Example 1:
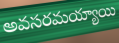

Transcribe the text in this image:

అవసరమయ్యాయి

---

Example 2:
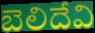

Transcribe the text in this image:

బెలిదేవి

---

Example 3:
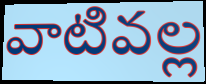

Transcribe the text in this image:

వాటివల్ల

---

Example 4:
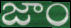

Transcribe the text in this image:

జాం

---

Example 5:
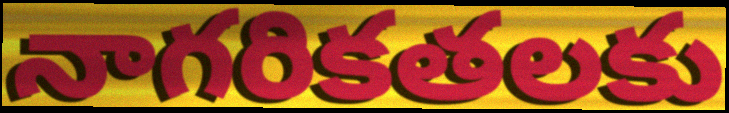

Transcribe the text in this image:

నాగరికతలకు